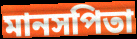
মানসপিতা